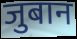
जुबान